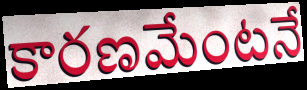
కారణమేంటనే